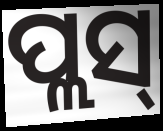
ପ୍ଲସ୍